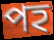
পহ